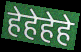
हेहेहेहे